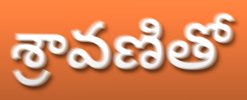
శ్రావణితో